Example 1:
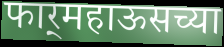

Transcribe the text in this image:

फार्महाऊसच्या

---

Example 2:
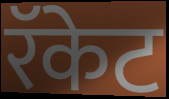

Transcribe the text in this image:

रॅकेट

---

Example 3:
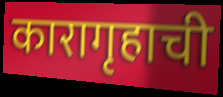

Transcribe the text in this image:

कारागृहाची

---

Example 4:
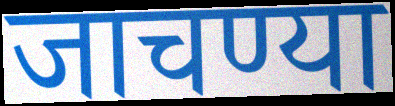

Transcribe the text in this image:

जाचण्या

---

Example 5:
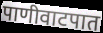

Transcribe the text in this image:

पाणीवाटपात